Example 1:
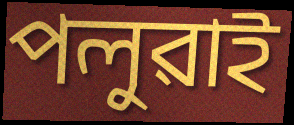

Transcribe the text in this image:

পলুৱাই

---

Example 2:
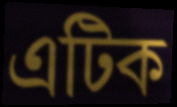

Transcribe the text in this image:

এটিক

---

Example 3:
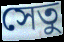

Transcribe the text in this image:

সেতু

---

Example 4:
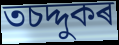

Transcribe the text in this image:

তচদ্দুকৰ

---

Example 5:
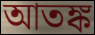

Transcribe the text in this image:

আতঙ্ক